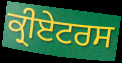
ਕ੍ਰੀਏਟਰਸ